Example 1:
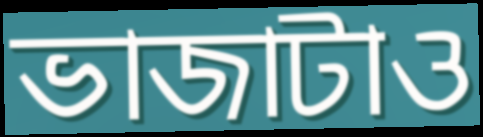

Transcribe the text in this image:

ভাজাটাও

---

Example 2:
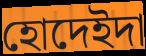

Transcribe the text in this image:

হোদেইদা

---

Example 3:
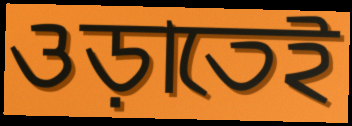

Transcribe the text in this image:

ওড়াতেই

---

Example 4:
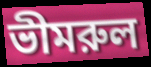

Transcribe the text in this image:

ভীমরুল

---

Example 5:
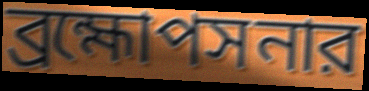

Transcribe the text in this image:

ব্রহ্মোপসনার